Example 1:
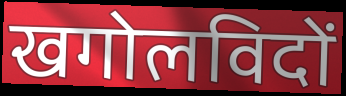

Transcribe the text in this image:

खगोलविदों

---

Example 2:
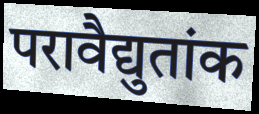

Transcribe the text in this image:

परावैद्युतांक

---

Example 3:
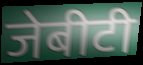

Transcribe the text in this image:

जेबीटी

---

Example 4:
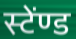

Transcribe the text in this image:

स्टेंण्ड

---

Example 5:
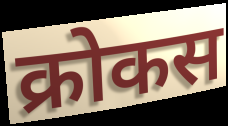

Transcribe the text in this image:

क्रोकस